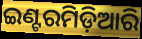
ଇଣ୍ଟରମିଡ଼ିଆରି